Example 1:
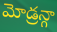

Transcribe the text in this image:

మోడ్రన్గా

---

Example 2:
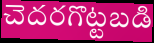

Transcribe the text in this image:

చెదరగొట్టబడి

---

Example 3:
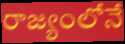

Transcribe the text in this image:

రాజ్యంలోనే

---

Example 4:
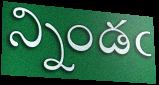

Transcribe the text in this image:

న్నిండఁ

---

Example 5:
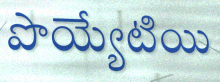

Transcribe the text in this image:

పొయ్యేటియి